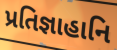
પ્રતિજ્ઞાહાનિ